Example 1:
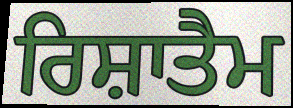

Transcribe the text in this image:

ਰਿਸ਼ਾਤੈਮ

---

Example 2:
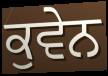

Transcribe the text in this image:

ਕੁਵੇਨ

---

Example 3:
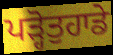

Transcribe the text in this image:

ਪੜ੍ਹੋਤੁਹਾਡੇ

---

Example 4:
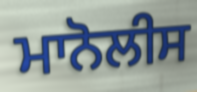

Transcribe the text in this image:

ਮਾਨੋਲੀਸ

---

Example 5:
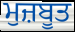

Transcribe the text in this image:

ਮੁਜ਼ਬੂਤ